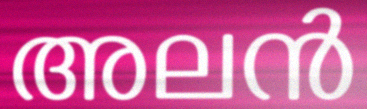
അലൻ